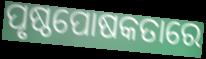
ପୃଷ୍ଠପୋଷକତାରେ